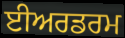
ਈਅਰਡਰਮ